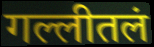
गल्लीतलं